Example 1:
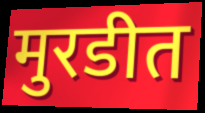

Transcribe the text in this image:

मुरडीत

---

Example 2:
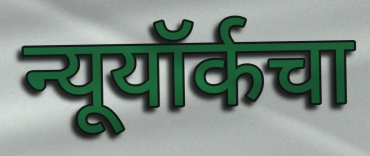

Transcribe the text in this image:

न्यूयॉर्कचा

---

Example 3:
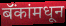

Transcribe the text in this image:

बॅंकांमधून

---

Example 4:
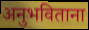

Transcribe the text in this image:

अनुभविताना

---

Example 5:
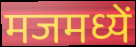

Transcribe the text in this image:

मजमध्यें